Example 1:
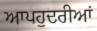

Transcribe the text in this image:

ਆਪਹੁਦਰੀਆਂ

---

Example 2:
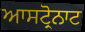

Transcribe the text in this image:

ਆਸਟ੍ਰੋਨਾਟ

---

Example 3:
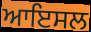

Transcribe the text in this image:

ਆਇਸਲ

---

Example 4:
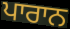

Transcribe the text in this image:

ਪਾਰਾਨ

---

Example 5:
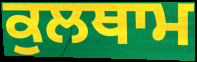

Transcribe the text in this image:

ਕੁਲਥਾਮ